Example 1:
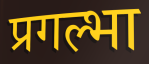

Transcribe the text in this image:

प्रगल्भा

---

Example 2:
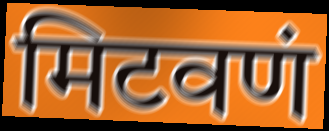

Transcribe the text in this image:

मिटवणं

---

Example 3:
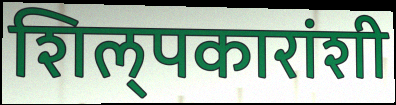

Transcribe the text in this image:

शिल्पकारांशी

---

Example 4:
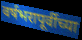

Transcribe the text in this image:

वर्षभरापूर्वीच्या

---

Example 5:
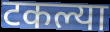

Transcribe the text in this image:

टकल्या